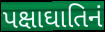
પક્ષાઘાતિનં